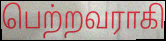
பெற்றவராகி